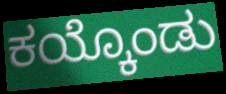
ಕಯ್ಕೊಂಡು